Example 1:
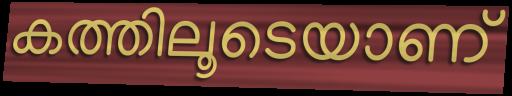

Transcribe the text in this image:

കത്തിലൂടെയാണ്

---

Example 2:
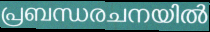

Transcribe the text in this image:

പ്രബന്ധരചനയിൽ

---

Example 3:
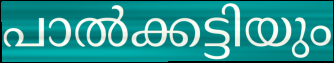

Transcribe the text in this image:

പാൽക്കട്ടിയും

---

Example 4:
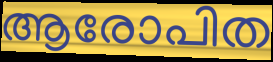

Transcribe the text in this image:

ആരോപിത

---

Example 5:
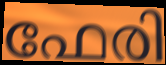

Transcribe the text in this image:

ഫേരി